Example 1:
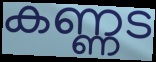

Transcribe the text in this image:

കണ്ണട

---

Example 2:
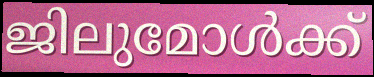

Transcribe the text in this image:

ജിലുമോൾക്ക്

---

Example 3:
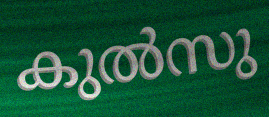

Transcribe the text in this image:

കുൽസു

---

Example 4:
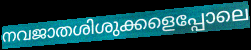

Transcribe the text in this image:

നവജാതശിശുക്കളെപ്പോലെ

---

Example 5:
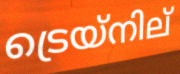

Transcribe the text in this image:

ട്രെയ്നില്